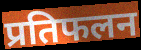
प्रतिफलन